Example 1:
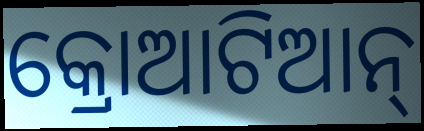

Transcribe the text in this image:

କ୍ରୋଆଟିଆନ୍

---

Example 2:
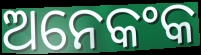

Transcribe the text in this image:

ଅନେକଂକ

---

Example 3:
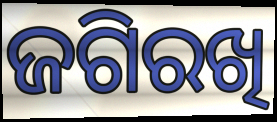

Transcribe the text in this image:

ଜଗିରଖି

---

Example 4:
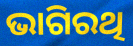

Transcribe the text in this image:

ଭାଗିରଥି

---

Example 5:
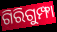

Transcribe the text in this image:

ଗିରିଗୁମ୍ଫା